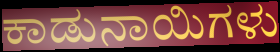
ಕಾಡುನಾಯಿಗಳು